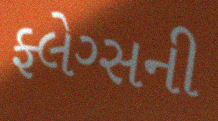
ફ્લેગ્સની